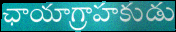
ఛాయాగ్రాహకుడు